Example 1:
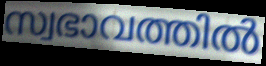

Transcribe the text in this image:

സ്വഭാവത്തിൽ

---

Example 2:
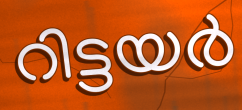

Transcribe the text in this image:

റിട്ടയർ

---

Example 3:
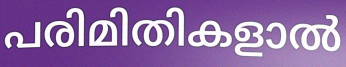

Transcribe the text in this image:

പരിമിതികളാൽ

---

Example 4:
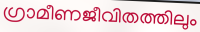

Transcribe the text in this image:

ഗ്രാമീണജീവിതത്തിലും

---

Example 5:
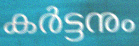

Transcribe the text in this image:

കർട്ടനും